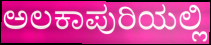
ಅಲಕಾಪುರಿಯಲ್ಲಿ